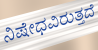
ನಿಷೇಧವಿರುತ್ತದೆ